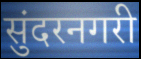
सुंदरनगरी